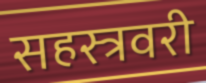
सहस्त्रवरी